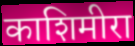
काशिमीरा